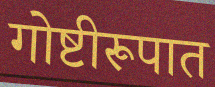
गोष्टीरूपात